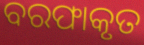
ବରଫାକୃତ